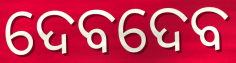
ଦେବଦେବ